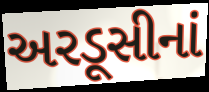
અરડૂસીનાં